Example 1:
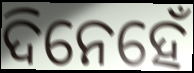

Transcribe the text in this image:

ଦିନେହେଁ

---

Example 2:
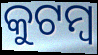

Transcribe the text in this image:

କୁଟମ୍ୱ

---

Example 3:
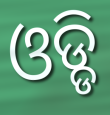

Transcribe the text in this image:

ଓଡ୍ଡି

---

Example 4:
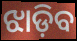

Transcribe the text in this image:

ଝାଡ଼ିବ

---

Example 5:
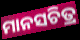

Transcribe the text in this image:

ମାନସଚିତ୍ର